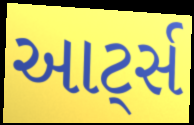
આટ્‌ર્સ